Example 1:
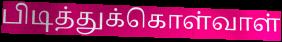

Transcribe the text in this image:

பிடித்துக்கொள்வாள்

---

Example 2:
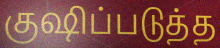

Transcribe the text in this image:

குஷிப்படுத்த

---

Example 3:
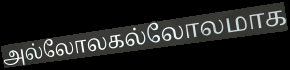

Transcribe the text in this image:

அல்லோலகல்லோலமாக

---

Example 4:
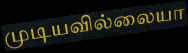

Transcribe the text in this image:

முடியவில்லையா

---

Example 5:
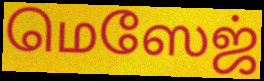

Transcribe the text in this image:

மெஸேஜ்